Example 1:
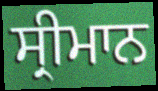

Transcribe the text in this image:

ਸ੍ਰੀਮਾਨ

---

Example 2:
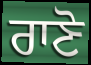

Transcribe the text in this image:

ਰਾਣੋ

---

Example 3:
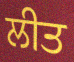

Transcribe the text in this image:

ਲੀਤ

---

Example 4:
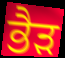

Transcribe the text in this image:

ਭੈੜ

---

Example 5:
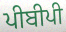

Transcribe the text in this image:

ਪੀਬੀਪੀ